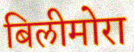
बिलीमोरा